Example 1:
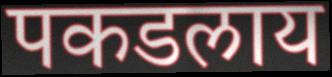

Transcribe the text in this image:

पकडलाय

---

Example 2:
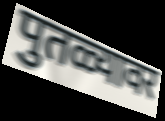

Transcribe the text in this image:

पुतळ्यावर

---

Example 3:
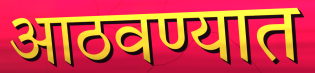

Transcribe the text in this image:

आठवण्यात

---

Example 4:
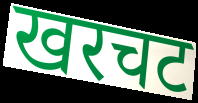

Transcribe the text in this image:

खरचट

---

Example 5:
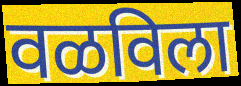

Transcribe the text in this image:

वळविला